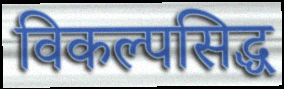
विकल्पसिद्ध